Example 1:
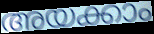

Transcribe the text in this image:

അയക്കാം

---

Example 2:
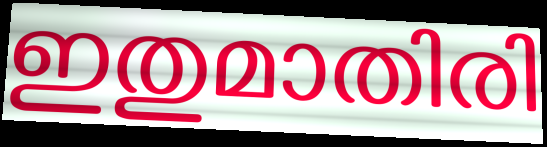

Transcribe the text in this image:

ഇതുമാതിരി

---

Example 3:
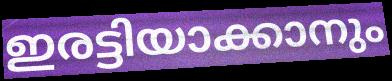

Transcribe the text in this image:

ഇരട്ടിയാക്കാനും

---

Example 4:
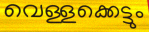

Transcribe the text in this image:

വെള്ളക്കെട്ടും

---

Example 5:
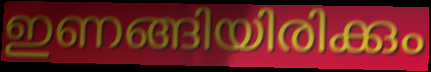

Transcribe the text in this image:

ഇണങ്ങിയിരിക്കും